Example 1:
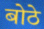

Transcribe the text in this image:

बोठे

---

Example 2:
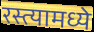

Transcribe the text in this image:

रस्त्यामध्ये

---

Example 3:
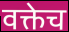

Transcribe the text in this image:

वक्तेच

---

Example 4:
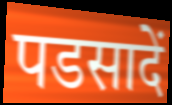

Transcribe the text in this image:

पडसादें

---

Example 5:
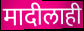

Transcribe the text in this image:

मादीलाही